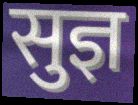
सुज्ञ